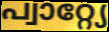
പ്വാറ്റ്യേ